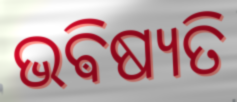
ଭଵିଷ୍ୟତି